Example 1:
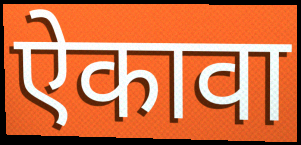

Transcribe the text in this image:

ऐकावा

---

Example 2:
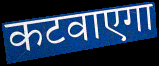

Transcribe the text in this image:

कटवाएगा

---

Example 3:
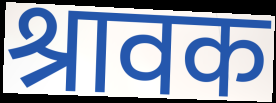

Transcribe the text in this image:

श्रावक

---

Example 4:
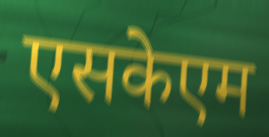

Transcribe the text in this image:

एसकेएम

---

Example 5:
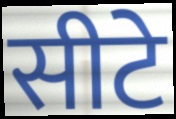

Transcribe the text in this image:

सीटे